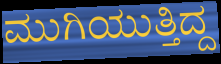
ಮುಗಿಯುತ್ತಿದ್ದ